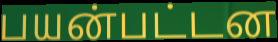
பயன்பட்டன